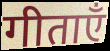
गीताएँ